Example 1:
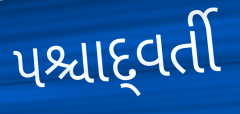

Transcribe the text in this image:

પશ્ચાદ્‌વર્તી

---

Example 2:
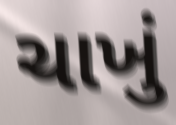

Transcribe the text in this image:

ચાખું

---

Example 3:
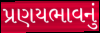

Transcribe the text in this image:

પ્રણયભાવનું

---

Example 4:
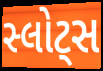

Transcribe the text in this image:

સ્લોટ્સ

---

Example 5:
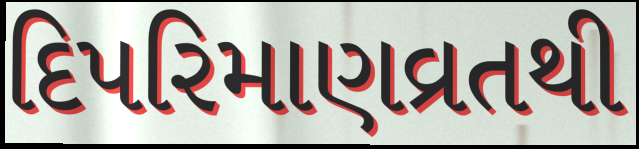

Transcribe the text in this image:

દિપરિમાણવ્રતથી